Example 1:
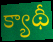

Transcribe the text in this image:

క్యాథీ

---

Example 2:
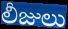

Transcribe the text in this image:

లీజులు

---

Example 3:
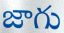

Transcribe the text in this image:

జాగు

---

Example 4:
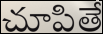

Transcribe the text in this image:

చూపితే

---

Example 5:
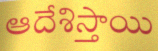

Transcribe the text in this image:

ఆదేశిస్తాయి